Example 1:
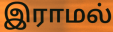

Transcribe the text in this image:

இராமல்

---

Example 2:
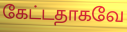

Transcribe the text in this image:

கேட்டதாகவே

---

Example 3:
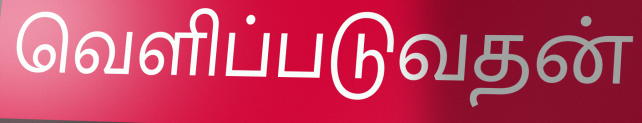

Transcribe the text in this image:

வெளிப்படுவதன்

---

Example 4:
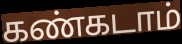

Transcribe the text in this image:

கண்கடாம்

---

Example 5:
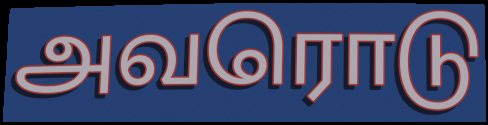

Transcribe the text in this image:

அவரொடு